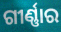
ଗୀର୍ଣ୍ଣାର